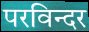
परविन्दर